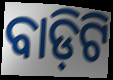
ବାଡ଼ିଟି